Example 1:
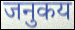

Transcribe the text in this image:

जनुकय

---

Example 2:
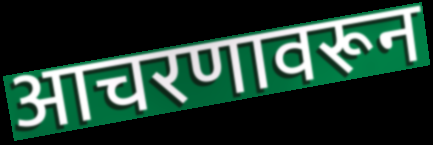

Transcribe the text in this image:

आचरणावरून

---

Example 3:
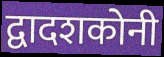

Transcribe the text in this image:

द्वादशकोनी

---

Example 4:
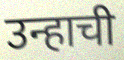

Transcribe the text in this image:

उन्हाची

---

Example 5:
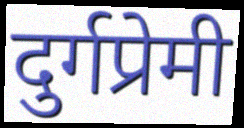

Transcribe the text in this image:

दुर्गप्रेमी